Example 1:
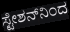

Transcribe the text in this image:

ಸ್ಟೇಶನ್‌ನಿಂದ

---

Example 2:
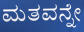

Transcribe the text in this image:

ಮತವನ್ನೇ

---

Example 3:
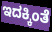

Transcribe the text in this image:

ಇದಕ್ಕಿಂತೆ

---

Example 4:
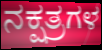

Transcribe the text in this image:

ನಕ್ಷತ್ರಗಳ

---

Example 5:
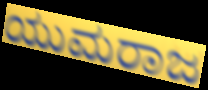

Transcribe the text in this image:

ಯುಮರಾಜ